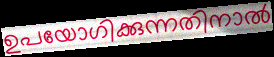
ഉപയോഗിക്കുന്നതിനാൽ